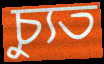
চ্যুত